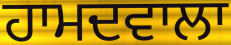
ਹਾਮਦਵਾਲਾ